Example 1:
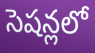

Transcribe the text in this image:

సెషన్లలో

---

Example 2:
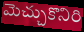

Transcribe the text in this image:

మెచ్చుకొనిరి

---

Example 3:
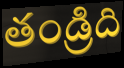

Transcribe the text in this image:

తండ్రిది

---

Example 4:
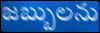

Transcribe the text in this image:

జబ్బులను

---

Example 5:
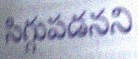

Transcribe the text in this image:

సిగ్గుపడనని